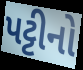
પટ્ટીનો